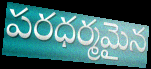
పరధర్మమైన